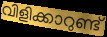
വിളിക്കാറുണ്ട്